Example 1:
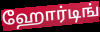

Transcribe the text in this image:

ஹோர்டிங்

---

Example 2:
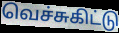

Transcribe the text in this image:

வெச்சுகிட்டு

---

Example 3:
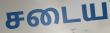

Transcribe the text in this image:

சடைய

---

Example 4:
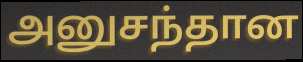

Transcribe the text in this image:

அனுசந்தான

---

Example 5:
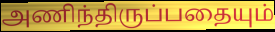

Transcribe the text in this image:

அணிந்திருப்பதையும்